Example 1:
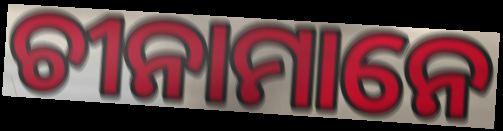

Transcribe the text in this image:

ଚୀନାମାନେ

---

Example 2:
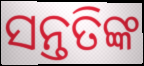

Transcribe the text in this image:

ସନ୍ତତିଙ୍କ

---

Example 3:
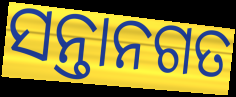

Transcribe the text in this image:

ସନ୍ତାନଗତ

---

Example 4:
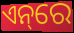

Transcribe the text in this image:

ଏନ୍‌ରେ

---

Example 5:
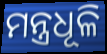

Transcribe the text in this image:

ମନ୍ତ୍ରଧୂଳି